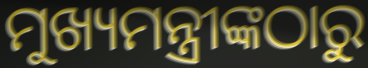
ମୁଖ୍ୟମନ୍ତ୍ରୀଙ୍କଠାରୁ